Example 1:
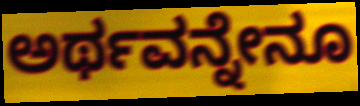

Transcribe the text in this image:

ಅರ್ಥವನ್ನೇನೂ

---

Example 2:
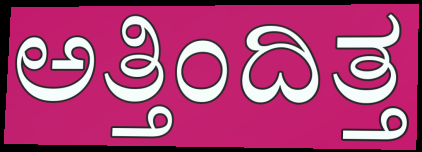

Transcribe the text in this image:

ಅತ್ತಿಂದಿತ್ತ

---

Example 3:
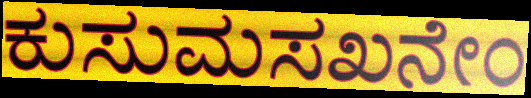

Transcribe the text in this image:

ಕುಸುಮಸಖನೇಂ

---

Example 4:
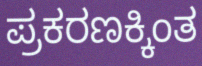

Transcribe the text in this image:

ಪ್ರಕರಣಕ್ಕಿಂತ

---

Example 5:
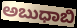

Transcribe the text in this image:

ಅಬುಧಾಬಿ